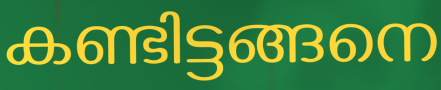
കണ്ടിട്ടങ്ങനെ